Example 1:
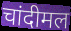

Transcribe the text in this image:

चांदीमल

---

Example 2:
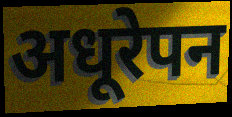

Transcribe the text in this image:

अधूरेपन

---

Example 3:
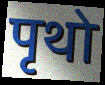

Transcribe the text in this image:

पृथो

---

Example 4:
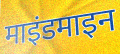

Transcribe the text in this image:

माइंडमाइन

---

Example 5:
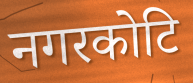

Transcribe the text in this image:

नगरकोटि